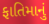
ફાતિમાનું